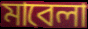
মাবেলা